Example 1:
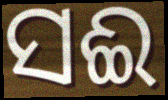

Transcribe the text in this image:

ସଈ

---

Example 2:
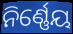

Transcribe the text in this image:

ନିର୍ଣ୍ଣେୟ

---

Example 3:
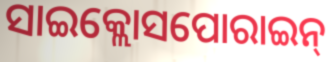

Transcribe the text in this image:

ସାଇକ୍ଲୋସପୋରାଇନ୍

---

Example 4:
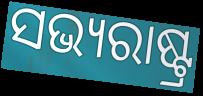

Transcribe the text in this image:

ସଭ୍ୟରାଷ୍ଟ୍ର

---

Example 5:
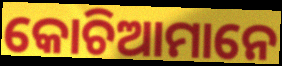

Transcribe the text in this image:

କୋଚିଆମାନେ